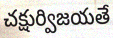
చక్షుర్విజయతే